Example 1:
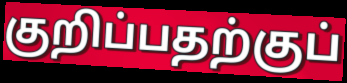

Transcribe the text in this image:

குறிப்பதற்குப்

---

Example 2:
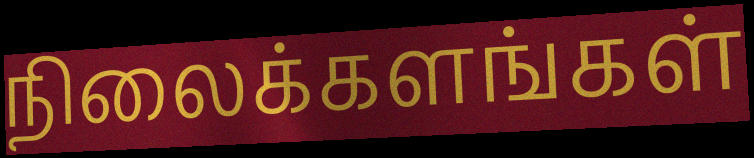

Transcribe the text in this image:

நிலைக்களங்கள்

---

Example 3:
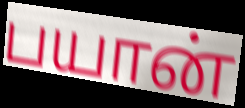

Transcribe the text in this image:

பயான்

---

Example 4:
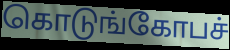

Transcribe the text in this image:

கொடுங்கோபச்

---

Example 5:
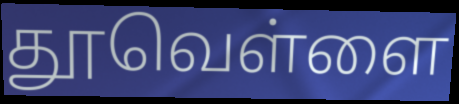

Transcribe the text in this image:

தூவெள்ளை